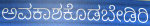
ಅವಕಾಶಕೊಡಬೇಡಿರಿ